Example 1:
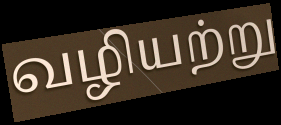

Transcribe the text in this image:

வழியற்று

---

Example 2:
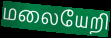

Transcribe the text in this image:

மலையேறி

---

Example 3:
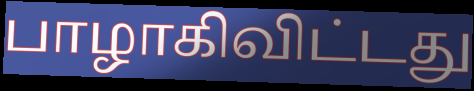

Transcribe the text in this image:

பாழாகிவிட்டது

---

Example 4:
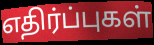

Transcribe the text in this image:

எதிர்ப்புகள்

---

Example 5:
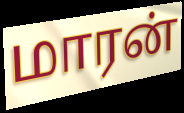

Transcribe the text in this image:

மாரன்